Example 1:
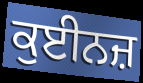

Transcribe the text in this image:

ਕੁਈਨਜ਼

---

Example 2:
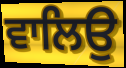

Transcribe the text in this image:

ਵਾਲਿਉ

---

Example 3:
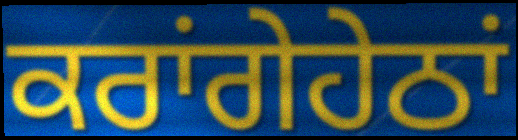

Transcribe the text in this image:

ਕਰਾਂਗੇਹੇਠਾਂ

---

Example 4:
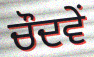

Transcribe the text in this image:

ਚੌਦਵੇਂ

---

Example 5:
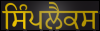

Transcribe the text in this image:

ਸਿੰਪਲੈਕਸ